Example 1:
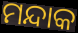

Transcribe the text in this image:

ମନ୍ଦାକ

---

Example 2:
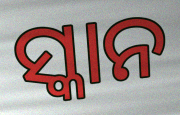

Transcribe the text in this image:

ସ୍କାନ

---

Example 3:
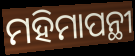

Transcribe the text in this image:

ମହିମାପନ୍ଥୀ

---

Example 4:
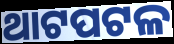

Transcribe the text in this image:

ଥାଟପଟଳ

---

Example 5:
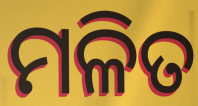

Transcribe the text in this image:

ମଳିତ